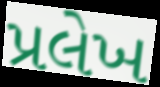
પ્રલેખ